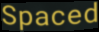
Spaced